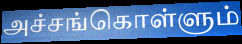
அச்சங்கொள்ளும்